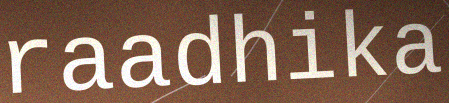
raadhika